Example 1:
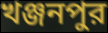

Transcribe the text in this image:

খঞ্জনপুর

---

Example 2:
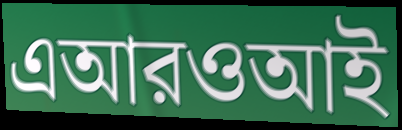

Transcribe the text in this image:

এআরওআই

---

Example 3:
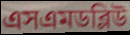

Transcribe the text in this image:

এসএমডব্লিউ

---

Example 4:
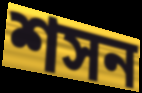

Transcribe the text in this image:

শসন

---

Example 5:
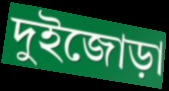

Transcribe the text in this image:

দুইজোড়া